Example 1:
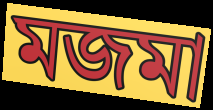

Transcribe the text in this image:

মজমা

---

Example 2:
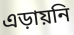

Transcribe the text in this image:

এড়ায়নি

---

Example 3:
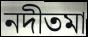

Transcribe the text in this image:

নদীতমা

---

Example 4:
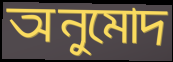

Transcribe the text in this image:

অনুমোদ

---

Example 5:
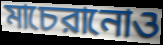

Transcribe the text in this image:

মাচেরানোও